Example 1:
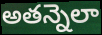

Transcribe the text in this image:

అతన్నెలా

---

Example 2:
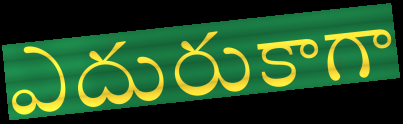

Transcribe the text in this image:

ఎదురుకాగా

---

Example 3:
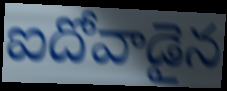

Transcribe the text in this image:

ఐదోవాడైన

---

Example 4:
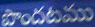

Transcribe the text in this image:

పొందటము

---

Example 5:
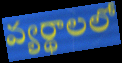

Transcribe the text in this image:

వ్యర్థాలలో